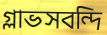
গ্লাভসবন্দি